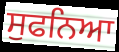
ਸੁਫਨਿਆ